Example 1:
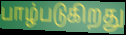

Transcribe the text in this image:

பாழ்படுகிறது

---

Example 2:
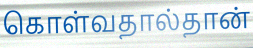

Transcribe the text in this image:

கொள்வதால்தான்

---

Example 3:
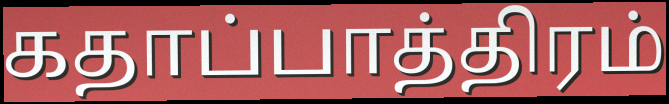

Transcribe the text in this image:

கதாப்பாத்திரம்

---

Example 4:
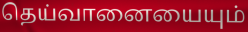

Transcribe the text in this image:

தெய்வானையையும்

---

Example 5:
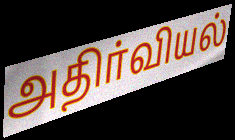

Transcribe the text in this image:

அதிர்வியல்